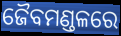
ଜୈବମଣ୍ଡଳରେ